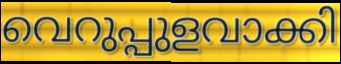
വെറുപ്പുളവാക്കി